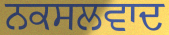
ਨਕਸਲਵਾਦ